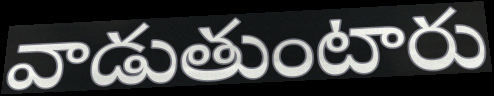
వాడుతుంటారు